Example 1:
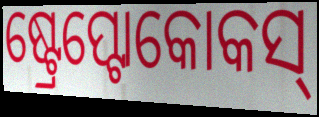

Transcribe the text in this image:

ଷ୍ଟ୍ରେପ୍ଟୋକୋକସ୍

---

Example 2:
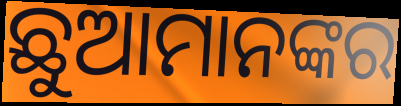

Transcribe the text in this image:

ଛୁଆମାନଙ୍କର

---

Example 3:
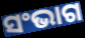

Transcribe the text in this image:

ସଂଭାଗ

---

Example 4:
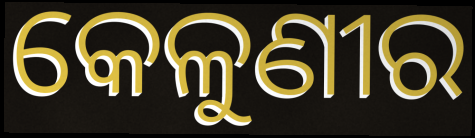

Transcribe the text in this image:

କେଳୁଣୀର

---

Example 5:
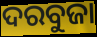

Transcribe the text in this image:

ଦରବୁଜା